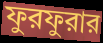
ফুরফুরার